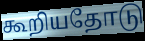
கூறியதோடு